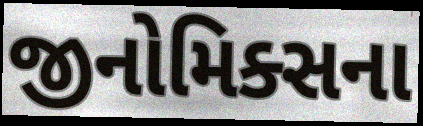
જીનોમિક્સના